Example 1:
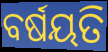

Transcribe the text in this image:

ବର୍ଷୟତି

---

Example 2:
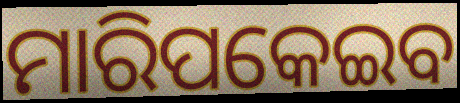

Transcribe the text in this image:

ମାରିପକେଇବ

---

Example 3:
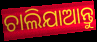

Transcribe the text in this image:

ଚାଲିଯାଆନ୍ତୁ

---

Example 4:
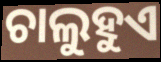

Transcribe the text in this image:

ଚାଲୁହୁଏ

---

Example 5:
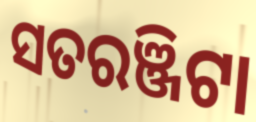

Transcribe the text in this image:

ସତରଞ୍ଜିଟା